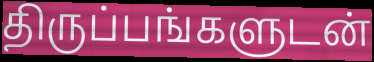
திருப்பங்களுடன்